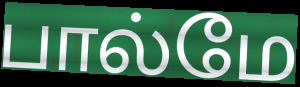
பால்மே